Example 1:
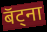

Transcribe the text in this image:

बॅट्ना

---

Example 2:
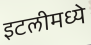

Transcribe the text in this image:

इटलीमध्ये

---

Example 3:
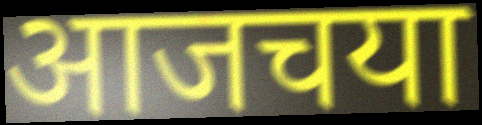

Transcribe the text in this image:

आजचया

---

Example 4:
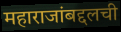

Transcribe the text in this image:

महाराजांबद्दलची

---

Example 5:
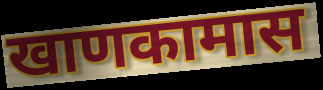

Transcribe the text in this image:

खाणकामास